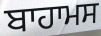
ਬਾਹਾਮਸ